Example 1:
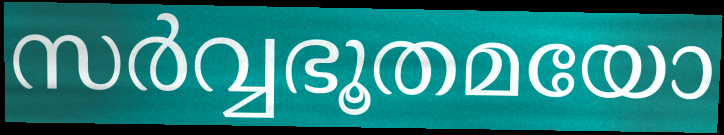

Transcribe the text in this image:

സർവ്വഭൂതമയോ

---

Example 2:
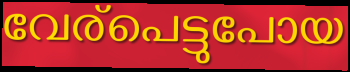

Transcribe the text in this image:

വേര്പെട്ടുപോയ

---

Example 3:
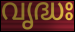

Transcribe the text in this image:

വൃദ്ധഃ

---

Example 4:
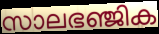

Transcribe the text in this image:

സാലഭഞ്ജിക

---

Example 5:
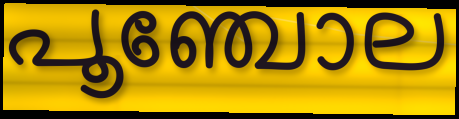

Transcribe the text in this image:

പൂഞ്ചോല